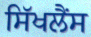
ਸਿੱਖਲੈਂਸ